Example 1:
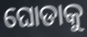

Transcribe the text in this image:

ଘୋଡାକୁ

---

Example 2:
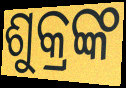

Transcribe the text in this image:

ଶୁକ୍ରଙ୍କ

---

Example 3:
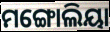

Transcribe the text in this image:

ମଙ୍ଗୋଲିୟା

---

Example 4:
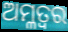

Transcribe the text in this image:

ଅମ୍ଳତ୍ଵର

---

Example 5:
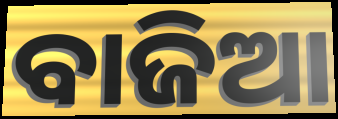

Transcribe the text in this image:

ବାଜିଆ